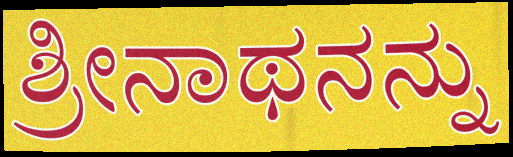
ಶ್ರೀನಾಥನನ್ನು